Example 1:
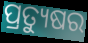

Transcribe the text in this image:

ପ୍ରତ୍ୟୁଷର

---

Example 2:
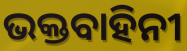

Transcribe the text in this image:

ଭକ୍ତବାହିନୀ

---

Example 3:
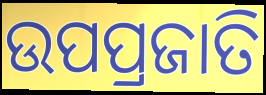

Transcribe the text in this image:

ଉପପ୍ରଜାତି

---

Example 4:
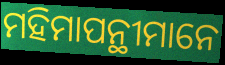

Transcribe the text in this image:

ମହିମାପନ୍ଥୀମାନେ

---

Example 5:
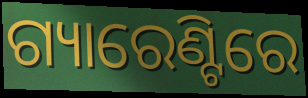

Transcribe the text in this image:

ଗ୍ୟାରେଣ୍ଟିରେ